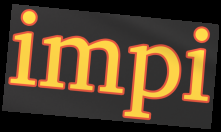
impi